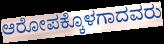
ಆರೋಪಕ್ಕೊಳಗಾದವರು